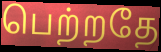
பெற்றதே